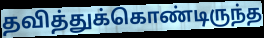
தவித்துக்கொண்டிருந்த